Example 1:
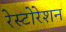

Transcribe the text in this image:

रेस्टोरेशन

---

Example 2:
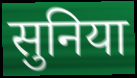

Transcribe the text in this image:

सुनिया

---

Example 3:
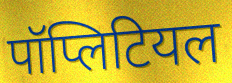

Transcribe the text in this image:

पॉप्लिटियल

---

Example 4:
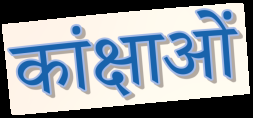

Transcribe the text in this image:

कांक्षाओं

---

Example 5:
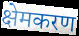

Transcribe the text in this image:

क्षेमकरण